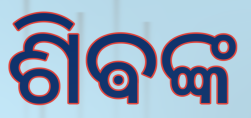
ଶିଵଙ୍କ